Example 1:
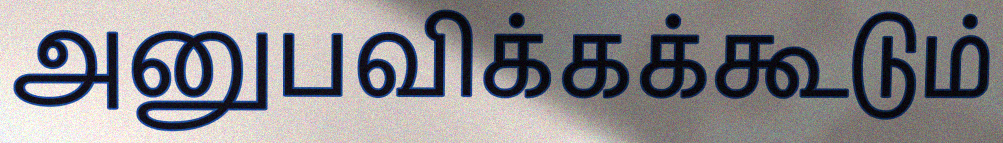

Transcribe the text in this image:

அனுபவிக்கக்கூடும்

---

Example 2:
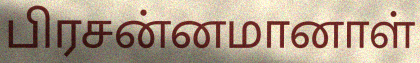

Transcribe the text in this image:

பிரசன்னமானாள்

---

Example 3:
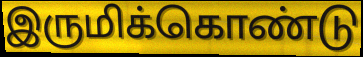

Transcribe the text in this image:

இருமிக்கொண்டு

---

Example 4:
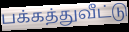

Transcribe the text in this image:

பக்கத்துவீட்டு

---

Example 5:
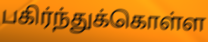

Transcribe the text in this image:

பகிர்ந்துக்கொள்ள